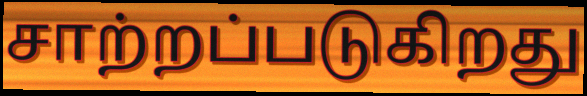
சாற்றப்படுகிறது